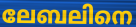
ലേബലിനെ